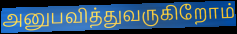
அனுபவித்துவருகிறோம்